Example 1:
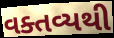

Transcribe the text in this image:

વક્તવ્યથી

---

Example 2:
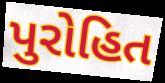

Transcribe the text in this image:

પુરોહિત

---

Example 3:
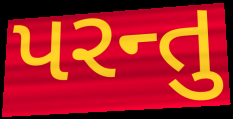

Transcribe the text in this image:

પરન્તુ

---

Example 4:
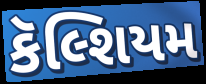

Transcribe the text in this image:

કૅલ્શિયમ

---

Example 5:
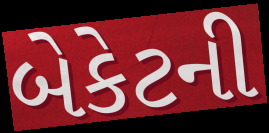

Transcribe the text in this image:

બેકેટની